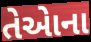
તેએાના